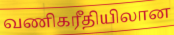
வணிகரீதியிலான